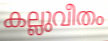
കല്ലുവീതം